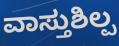
ವಾಸ್ತುಶಿಲ್ಪ